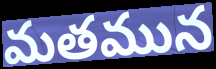
మతమున